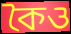
কৈও